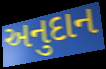
અનુદાન